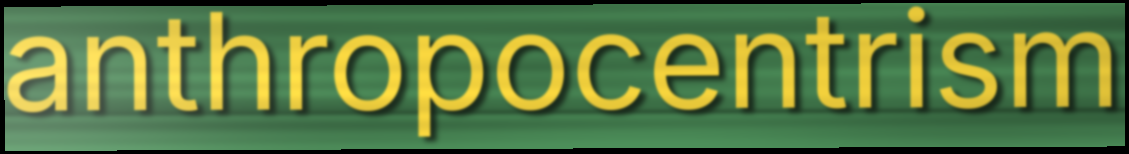
anthropocentrism